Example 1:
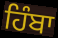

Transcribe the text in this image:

ਹਿੰਬਾ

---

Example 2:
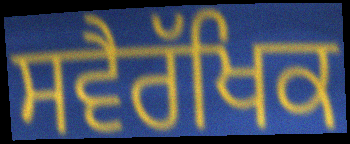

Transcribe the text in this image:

ਸਵੈਰੱਖਿਕ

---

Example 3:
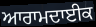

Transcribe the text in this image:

ਆਰਾਮਦਾਈਕ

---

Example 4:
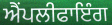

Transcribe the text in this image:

ਐਂਪਲੀਫਾਇੰਗ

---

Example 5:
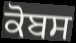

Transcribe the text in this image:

ਕੋਬਸ